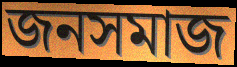
জনসমাজ